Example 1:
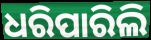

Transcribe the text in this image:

ଧରିପାରିଲି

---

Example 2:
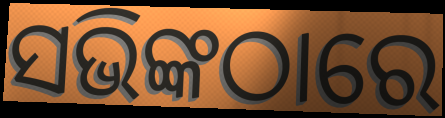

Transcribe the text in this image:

ସଭିଙ୍କଠାରେ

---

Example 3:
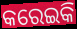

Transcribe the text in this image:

କରେଇକି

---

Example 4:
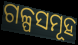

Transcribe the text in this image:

ଗଳ୍ପସମୂହ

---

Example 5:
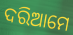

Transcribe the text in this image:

ଦରିଆମେ